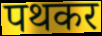
पथकर